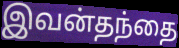
இவன்தந்தை